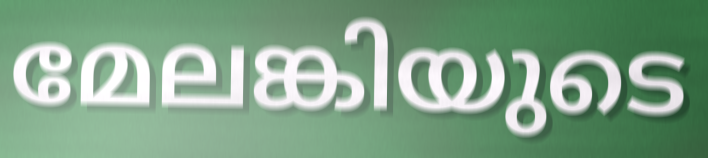
മേലങ്കിയുടെ